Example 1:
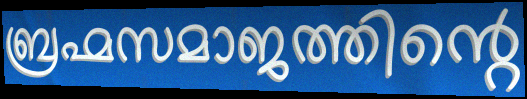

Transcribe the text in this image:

ബ്രഹ്മസമാജത്തിന്റെ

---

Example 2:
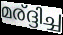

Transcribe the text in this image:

മര്ദ്ദിച്ച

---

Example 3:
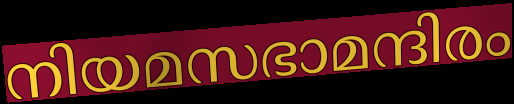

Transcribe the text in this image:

നിയമസഭാമന്ദിരം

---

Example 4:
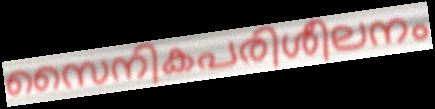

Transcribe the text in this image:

സൈനികപരിശീലനം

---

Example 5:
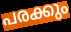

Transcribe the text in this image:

പരക്കും